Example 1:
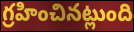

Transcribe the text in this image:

గ్రహించినట్లుంది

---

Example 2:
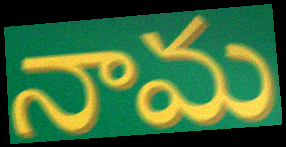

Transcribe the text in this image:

నామ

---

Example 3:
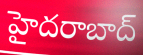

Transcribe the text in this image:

హైదరాబాద్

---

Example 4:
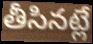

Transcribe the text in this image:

తీసినట్లే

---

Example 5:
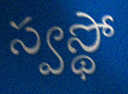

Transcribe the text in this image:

స్వస్థో